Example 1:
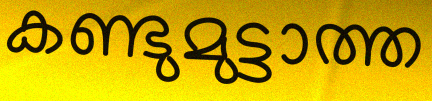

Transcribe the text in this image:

കണ്ടുമുട്ടാത്ത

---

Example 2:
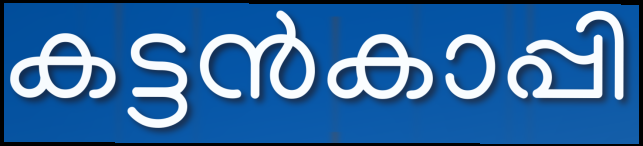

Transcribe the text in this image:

കട്ടൻകാപ്പി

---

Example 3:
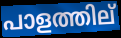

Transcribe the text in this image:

പാളത്തില്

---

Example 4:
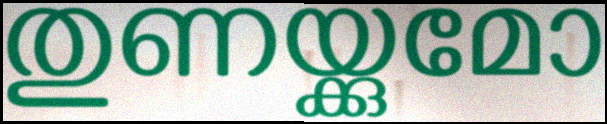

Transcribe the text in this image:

തുണയ്ക്കുമോ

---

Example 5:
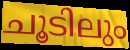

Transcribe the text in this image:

ചൂടിലും